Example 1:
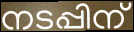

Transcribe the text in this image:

നടപ്പിന്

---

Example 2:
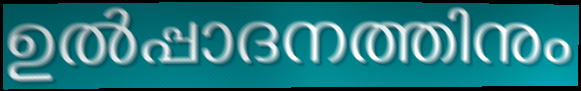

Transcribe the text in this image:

ഉൽപ്പാദനത്തിനും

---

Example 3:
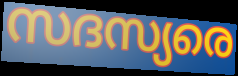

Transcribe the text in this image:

സദസ്യരെ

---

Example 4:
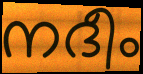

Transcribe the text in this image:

നദീം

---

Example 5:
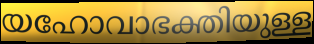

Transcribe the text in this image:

യഹോവാഭക്തിയുള്ള